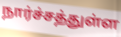
நார்ச்சத்துள்ள